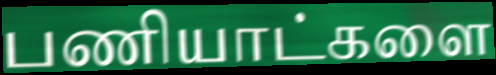
பணியாட்களை